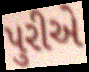
પુરીએ